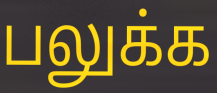
பலுக்க